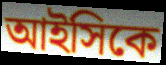
আইসিকে